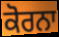
ਕੋਰਨਾ